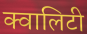
क्‍वालिटी